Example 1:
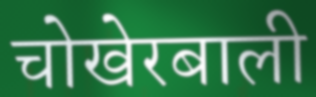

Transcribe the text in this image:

चोखेरबाली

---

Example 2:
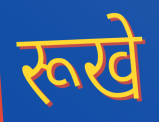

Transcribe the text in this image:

रूखे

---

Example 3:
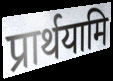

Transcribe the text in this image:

प्रार्थयामि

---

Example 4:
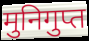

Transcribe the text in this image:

मुनिगुप्त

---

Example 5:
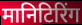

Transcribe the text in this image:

मानिटिरिंग